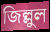
জিল্লুল